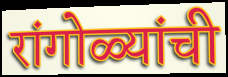
रांगोळ्यांची